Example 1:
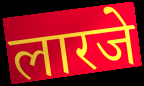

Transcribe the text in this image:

लारजे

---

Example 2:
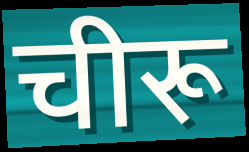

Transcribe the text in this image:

चीरू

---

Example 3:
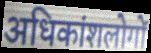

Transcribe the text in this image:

अधिकांशलोगों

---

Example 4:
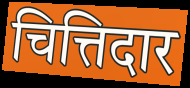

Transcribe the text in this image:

चित्तिदार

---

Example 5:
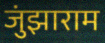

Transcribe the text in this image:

जुंझाराम